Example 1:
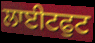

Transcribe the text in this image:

ਲਾਈਟਫੁਟ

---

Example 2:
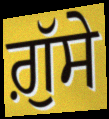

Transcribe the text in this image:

ਗ਼ੁੱਸੇ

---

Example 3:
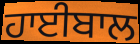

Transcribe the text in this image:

ਹਾਈਬਾਲ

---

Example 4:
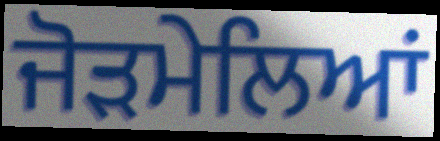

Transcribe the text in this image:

ਜੋੜਮੇਲਿਆਂ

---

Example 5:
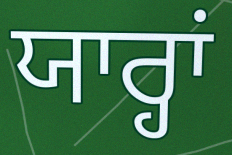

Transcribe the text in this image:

ਯਾਰ੍ਹਾਂ